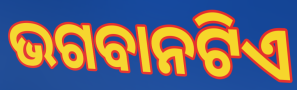
ଭଗବାନଟିଏ